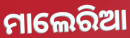
ମାଲେରିଆ